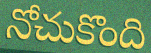
నోచుకొంది